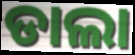
ଡାଲା